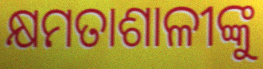
କ୍ଷମତାଶାଳୀଙ୍କୁ